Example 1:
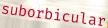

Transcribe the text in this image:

suborbicular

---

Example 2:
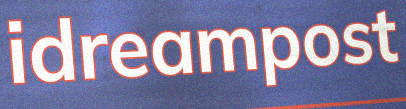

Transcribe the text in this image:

idreampost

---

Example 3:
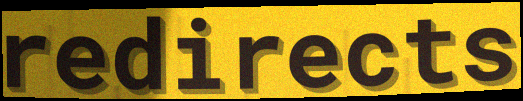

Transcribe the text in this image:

redirects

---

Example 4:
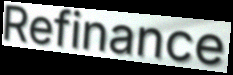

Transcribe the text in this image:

Refinance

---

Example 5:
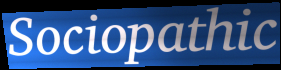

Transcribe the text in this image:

Sociopathic